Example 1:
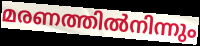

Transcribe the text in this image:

മരണത്തിൽനിന്നും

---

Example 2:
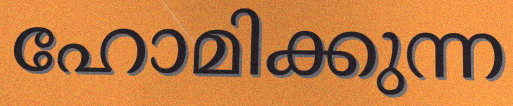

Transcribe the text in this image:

ഹോമിക്കുന്ന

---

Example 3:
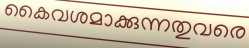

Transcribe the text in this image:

കൈവശമാക്കുന്നതുവരെ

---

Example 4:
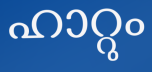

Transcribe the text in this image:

ഹാറ്റും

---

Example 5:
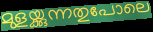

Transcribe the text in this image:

മുളയ്ക്കുന്നതുപോലെ